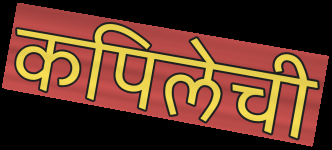
कपिलेची